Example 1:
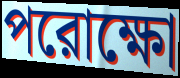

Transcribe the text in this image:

পরোক্ষো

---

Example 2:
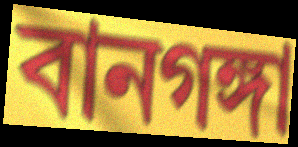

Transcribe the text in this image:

বানগঙ্গা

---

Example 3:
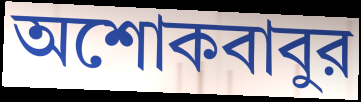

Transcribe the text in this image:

অশোকবাবুর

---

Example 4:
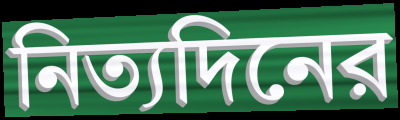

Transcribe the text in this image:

নিত্যদিনের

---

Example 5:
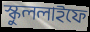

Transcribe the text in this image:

স্কুললাইফে